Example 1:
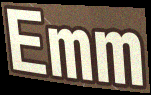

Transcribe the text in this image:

Emm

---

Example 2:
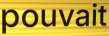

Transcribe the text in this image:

pouvait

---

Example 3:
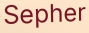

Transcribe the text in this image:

Sepher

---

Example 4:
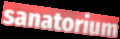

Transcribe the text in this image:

sanatorium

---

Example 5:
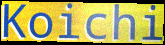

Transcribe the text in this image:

Koichi